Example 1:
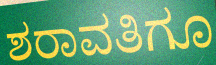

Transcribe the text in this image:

ಶರಾವತಿಗೂ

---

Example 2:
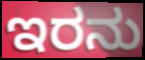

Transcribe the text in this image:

ಇರನು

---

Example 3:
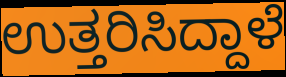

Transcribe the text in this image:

ಉತ್ತರಿಸಿದ್ದಾಳೆ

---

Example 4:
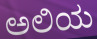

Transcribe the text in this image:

ಅಲಿಯ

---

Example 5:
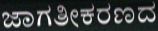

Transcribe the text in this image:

ಜಾಗತೀಕರಣದ